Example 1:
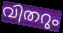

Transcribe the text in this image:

വിതറും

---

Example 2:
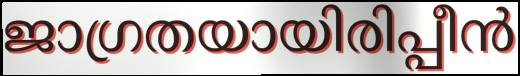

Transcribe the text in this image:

ജാഗ്രതയായിരിപ്പീൻ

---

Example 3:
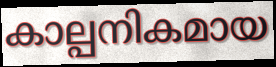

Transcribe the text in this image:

കാല്പനികമായ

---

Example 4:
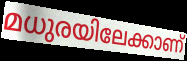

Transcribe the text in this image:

മധുരയിലേക്കാണ്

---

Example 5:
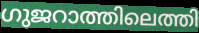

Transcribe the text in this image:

ഗുജറാത്തിലെത്തി